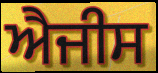
ਐਜੀਸ